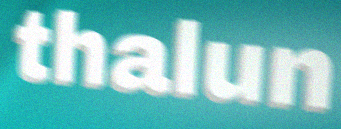
thalun